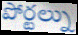
పోర్టల్ను